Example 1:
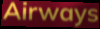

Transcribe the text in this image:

Airways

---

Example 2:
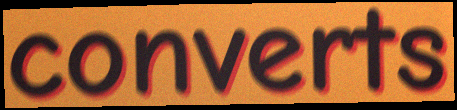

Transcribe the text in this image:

converts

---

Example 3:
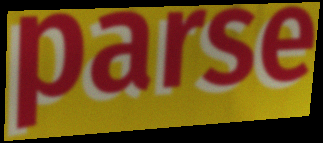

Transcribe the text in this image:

parse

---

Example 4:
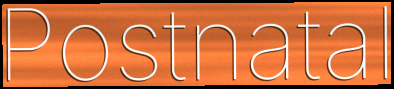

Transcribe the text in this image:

Postnatal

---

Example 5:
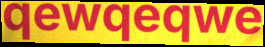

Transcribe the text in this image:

qewqeqwe